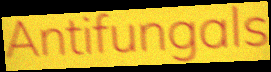
Antifungals